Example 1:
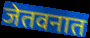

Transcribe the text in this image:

जेतवनात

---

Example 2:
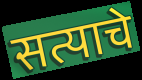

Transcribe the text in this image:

सत्याचे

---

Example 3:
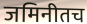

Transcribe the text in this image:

जमिनीतच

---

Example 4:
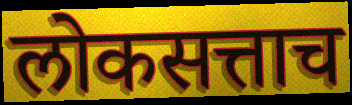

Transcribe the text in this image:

लोकसत्ताच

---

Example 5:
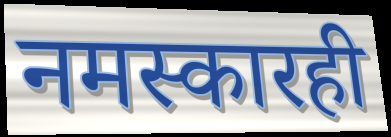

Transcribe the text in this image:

नमस्कारही